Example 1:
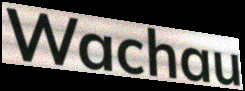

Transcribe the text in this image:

Wachau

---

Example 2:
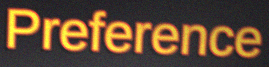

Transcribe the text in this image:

Preference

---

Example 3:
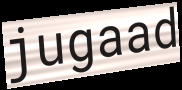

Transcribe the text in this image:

jugaad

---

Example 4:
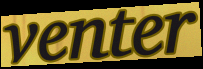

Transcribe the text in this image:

venter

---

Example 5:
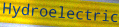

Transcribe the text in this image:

Hydroelectric